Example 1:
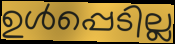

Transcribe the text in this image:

ഉൾപ്പെടില്ല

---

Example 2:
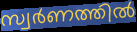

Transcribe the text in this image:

സ്വർണത്തിൽ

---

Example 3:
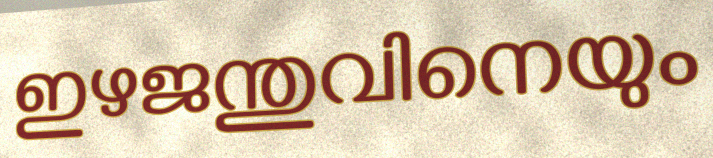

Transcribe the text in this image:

ഇഴജന്തുവിനെയും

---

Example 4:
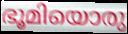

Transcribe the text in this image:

ഭൂമിയൊരു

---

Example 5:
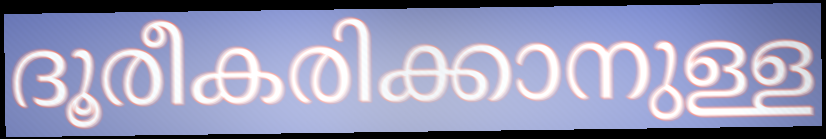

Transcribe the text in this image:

ദൂരീകരിക്കാനുള്ള